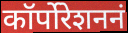
कॉर्पोरेशननं